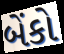
બેંકો